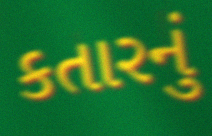
કતારનું